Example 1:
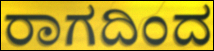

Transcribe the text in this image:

ರಾಗದಿಂದ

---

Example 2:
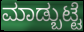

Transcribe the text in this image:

ಮಾಡ್ಬುಟ್ಟೆ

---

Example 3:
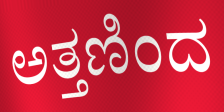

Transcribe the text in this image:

ಅತ್ತಣಿಂದ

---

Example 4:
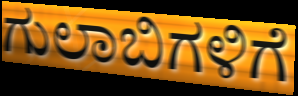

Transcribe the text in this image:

ಗುಲಾಬಿಗಳಿಗೆ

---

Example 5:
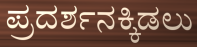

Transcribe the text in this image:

ಪ್ರದರ್ಶನಕ್ಕಿಡಲು